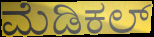
ಮೆಡಿಕಲ್